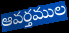
ఆవర్తముల